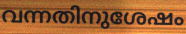
വന്നതിനുശേഷം